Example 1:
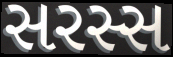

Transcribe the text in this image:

સરસ્સ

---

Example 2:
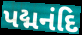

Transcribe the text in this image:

પદ્મનંદિ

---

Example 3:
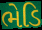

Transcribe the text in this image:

ભેડિ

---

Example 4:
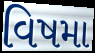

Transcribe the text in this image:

વિષમા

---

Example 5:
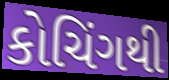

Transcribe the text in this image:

કોચિંગથી